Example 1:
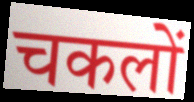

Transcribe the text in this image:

चकलों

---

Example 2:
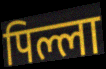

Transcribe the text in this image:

पिल्ला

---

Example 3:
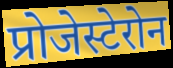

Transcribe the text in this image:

प्रोजेस्टेरोन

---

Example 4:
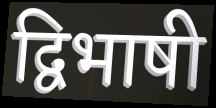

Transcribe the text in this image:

द्विभाषी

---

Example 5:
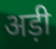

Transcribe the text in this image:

अड़ी